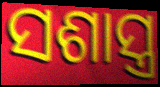
ସଶାସ୍ତ୍ର